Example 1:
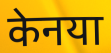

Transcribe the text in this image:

केनया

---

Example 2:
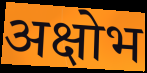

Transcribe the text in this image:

अक्षोभ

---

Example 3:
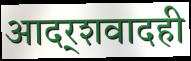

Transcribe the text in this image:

आदर्शवादही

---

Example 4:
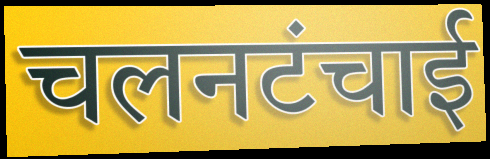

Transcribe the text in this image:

चलनटंचाई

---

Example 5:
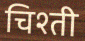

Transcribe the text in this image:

चिश्ती